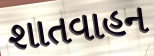
શાતવાહન